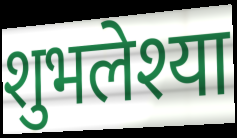
शुभलेश्या